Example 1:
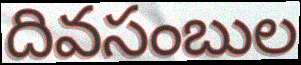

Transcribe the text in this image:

దివసంబుల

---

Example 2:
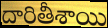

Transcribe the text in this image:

దారితీశాయి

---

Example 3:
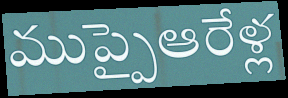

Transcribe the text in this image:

ముప్పైఆరేళ్ల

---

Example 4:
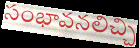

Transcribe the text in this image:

సంభావనలిచ్చి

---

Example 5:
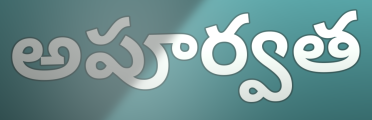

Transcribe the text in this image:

అపూర్వత